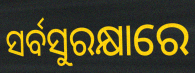
ସର୍ବସୁରକ୍ଷାରେ